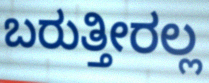
ಬರುತ್ತೀರಲ್ಲ